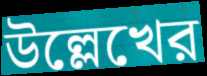
উল্লেখের